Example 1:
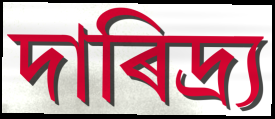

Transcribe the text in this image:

দাৰিদ্ৰ্য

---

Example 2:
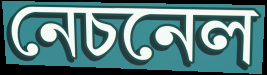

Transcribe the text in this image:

নেচনেল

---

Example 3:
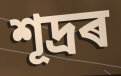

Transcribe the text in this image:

শূদ্ৰৰ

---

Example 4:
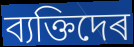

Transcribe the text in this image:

ব্যক্তিদেৰ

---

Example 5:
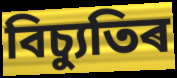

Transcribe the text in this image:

বিচ্যুতিৰ